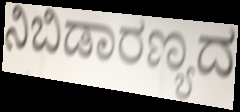
ನಿಬಿಡಾರಣ್ಯದ